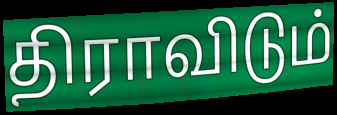
திராவிடும்